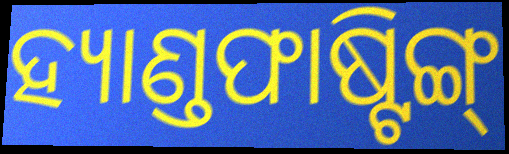
ହ୍ୟାଣ୍ଡଫାଷ୍ଟିଙ୍ଗ୍